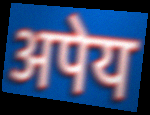
अपेय